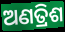
ଅଣତ୍ରିଶ